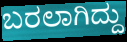
ಬರಲಾಗಿದ್ದು